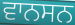
ਵਾਨਸਨ